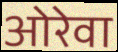
ओरेवा